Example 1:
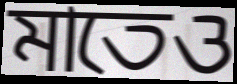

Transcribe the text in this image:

মাতেও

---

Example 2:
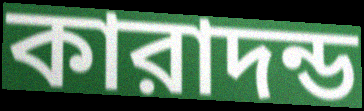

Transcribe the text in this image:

কারাদন্ড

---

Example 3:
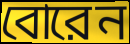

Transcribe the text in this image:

বোরেন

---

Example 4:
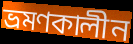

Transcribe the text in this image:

ভ্রমণকালীন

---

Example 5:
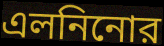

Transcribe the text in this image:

এলনিনোর